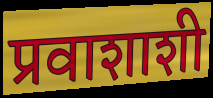
प्रवाशाशी